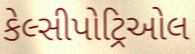
કેલ્સીપોટ્રિઓલ